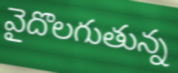
వైదొలగుతున్న